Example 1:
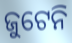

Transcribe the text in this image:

ଜୁଟେନି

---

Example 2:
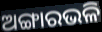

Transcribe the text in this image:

ଅଙ୍ଗାରଭଳି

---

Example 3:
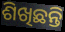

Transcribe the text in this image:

ଶିଖିଛନ୍ତି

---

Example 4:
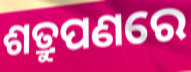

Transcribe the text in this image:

ଶତ୍ରୁପଣରେ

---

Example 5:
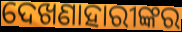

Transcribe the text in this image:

ଦେଖଣାହାରୀଙ୍କର